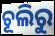
ଚୂଲିରୁ